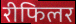
रीफिलर